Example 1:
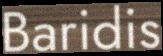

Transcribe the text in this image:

Baridis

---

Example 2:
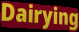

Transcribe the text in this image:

Dairying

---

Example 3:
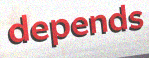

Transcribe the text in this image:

depends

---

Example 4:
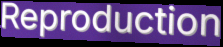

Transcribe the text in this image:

Reproduction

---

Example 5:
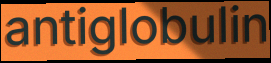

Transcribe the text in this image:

antiglobulin